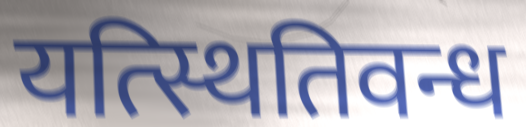
यत्स्थितिवन्ध